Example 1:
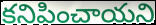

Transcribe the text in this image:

కనిపించాయని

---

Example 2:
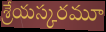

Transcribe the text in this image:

శ్రేయస్కరమూ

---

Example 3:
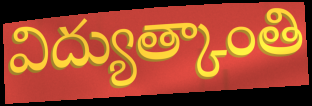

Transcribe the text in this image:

విద్యుత్కాంతి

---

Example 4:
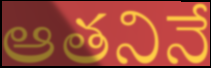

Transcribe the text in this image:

ఆతనినే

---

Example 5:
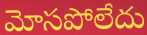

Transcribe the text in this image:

మోసపోలేదు